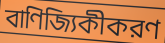
বাণিজ্যিকীকরণ